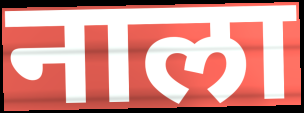
नाला